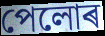
পেলোৰ